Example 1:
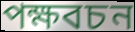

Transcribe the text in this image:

পক্ষবচন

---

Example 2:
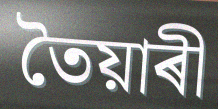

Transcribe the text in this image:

তৈয়াৰী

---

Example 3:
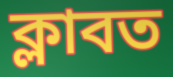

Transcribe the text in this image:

ক্লাবত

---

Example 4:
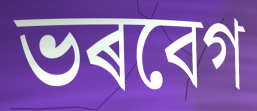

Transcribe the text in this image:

ভৰবেগ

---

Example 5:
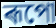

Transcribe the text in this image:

ৰূপো